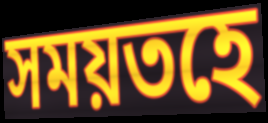
সময়তহে